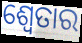
ଶ୍ୱେତାର